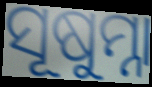
ସୂଷୁମ୍ନା